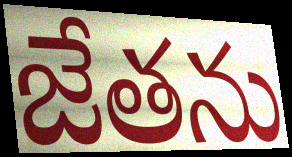
జేతను